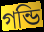
গন্ডি